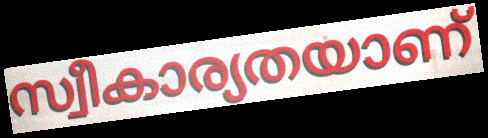
സ്വീകാര്യതയാണ്